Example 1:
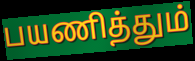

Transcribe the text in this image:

பயணித்தும்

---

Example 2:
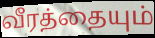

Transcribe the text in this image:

வீரத்தையும்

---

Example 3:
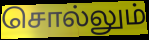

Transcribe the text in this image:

சொல்லும்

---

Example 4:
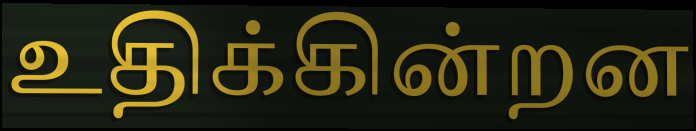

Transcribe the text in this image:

உதிக்கின்றன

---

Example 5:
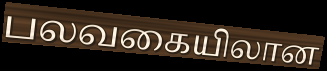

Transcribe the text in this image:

பலவகையிலான